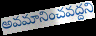
అవమానించవద్దని